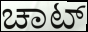
ಚಾಟ್